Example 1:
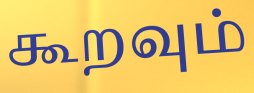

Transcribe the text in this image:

கூறவும்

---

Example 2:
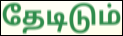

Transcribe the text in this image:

தேடிடும்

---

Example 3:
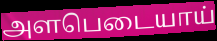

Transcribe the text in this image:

அளபெடையாய்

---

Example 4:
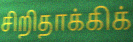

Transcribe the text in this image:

சிறிதாக்கிக்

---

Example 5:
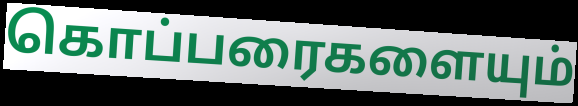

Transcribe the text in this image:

கொப்பரைகளையும்